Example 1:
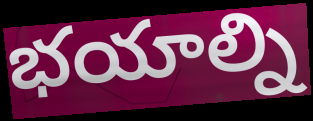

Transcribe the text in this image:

భయాల్ని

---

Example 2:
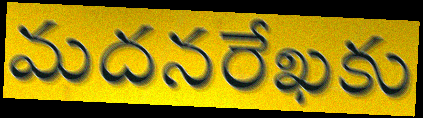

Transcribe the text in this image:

మదనరేఖకు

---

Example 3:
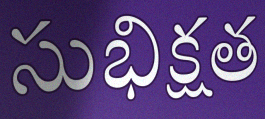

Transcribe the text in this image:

సుభిక్షత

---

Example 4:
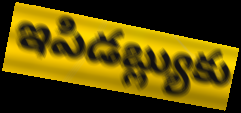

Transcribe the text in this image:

ఇపిడబ్ల్యుకు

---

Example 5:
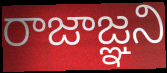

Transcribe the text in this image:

రాజాజ్ఞని